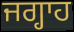
ਜਗ੍ਹਾਹ